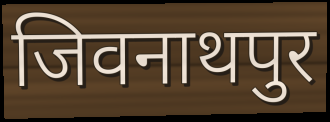
जिवनाथपुर